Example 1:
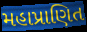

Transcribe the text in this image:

મહાપ્રાણિત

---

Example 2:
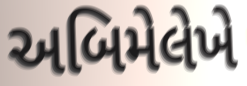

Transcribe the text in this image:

અબિમેલેખે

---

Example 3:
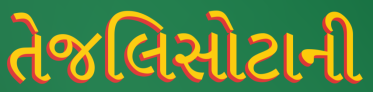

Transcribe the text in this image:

તેજલિસોટાની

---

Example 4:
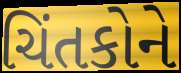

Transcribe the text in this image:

ચિંતકોને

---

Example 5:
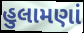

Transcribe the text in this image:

હુલામણાં